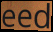
eed